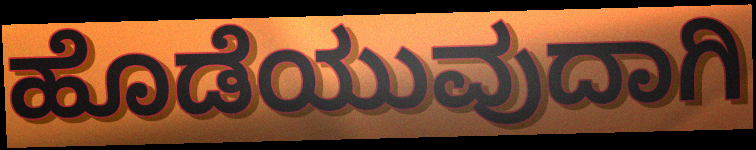
ಹೊಡೆಯುವುದಾಗಿ